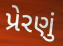
પ્રેરણું